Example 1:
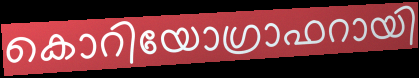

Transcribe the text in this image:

കൊറിയോഗ്രാഫറായി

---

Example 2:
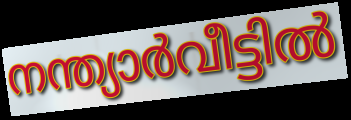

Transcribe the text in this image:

നന്ത്യാർവീട്ടിൽ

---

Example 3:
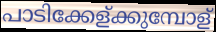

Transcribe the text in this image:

പാടിക്കേള്ക്കുമ്പോള്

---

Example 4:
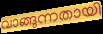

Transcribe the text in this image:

വാങ്ങുന്നതായി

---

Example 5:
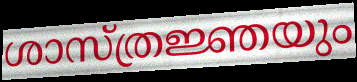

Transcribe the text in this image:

ശാസ്ത്രജ്ഞയും